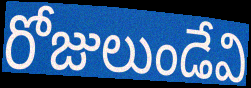
రోజులుండేవి